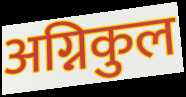
अग्निकुल